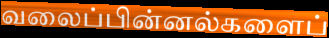
வலைப்பின்னல்களைப்